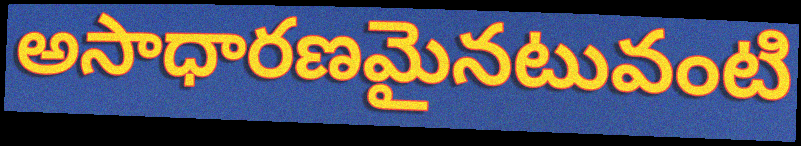
అసాధారణమైనటువంటి